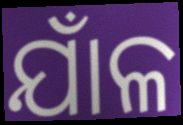
ଯାଁଳ